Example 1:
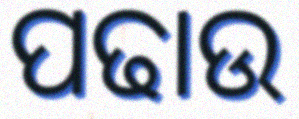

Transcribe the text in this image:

ପଢାଉ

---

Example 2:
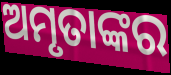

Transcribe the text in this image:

ଅମୃତାଙ୍କର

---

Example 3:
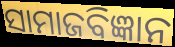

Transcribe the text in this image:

ସାମାଜବିଜ୍ଞାନ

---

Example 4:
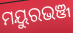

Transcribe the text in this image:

ମୟୁରଭଞ୍ଜ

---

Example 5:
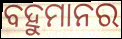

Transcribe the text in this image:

ବହୁମାନର